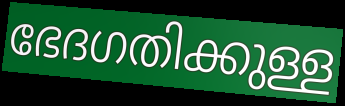
ഭേദഗതിക്കുള്ള